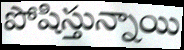
పోషిస్తున్నాయి